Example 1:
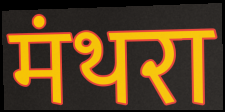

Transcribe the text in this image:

मंथरा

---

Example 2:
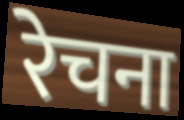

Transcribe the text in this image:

रेचना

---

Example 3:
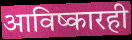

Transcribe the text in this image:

आविष्कारही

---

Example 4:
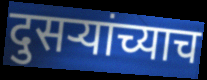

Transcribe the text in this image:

दुसऱ्यांच्याच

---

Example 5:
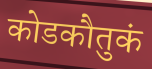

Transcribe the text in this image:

कोडकौतुकं